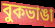
বুকভাঙা